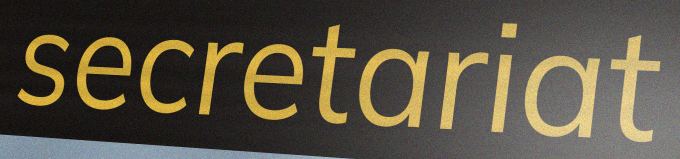
secretariat